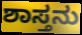
ಶಾಸ್ತನು